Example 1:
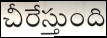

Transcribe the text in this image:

చీరేస్తుంది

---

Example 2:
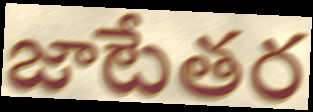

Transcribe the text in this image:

జాటేతర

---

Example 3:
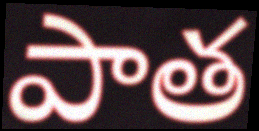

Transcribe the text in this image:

పాత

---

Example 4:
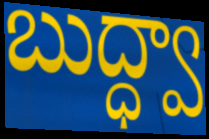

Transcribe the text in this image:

బుద్ధ్వా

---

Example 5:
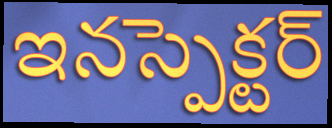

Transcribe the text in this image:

ఇనస్పెక్టర్